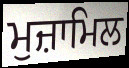
ਮੁਜ਼ਾਮਿਲ